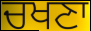
ਚਖਣਾ